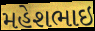
મહેશભાઇ